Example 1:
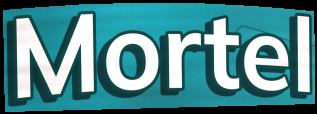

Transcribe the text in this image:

Mortel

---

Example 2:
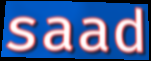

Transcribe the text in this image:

saad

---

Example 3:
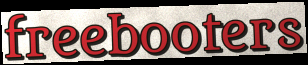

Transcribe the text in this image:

freebooters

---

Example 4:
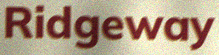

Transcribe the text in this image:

Ridgeway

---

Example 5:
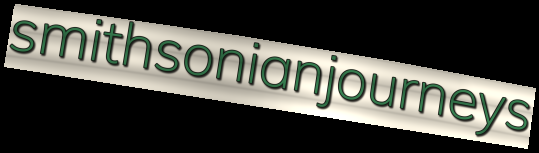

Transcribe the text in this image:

smithsonianjourneys